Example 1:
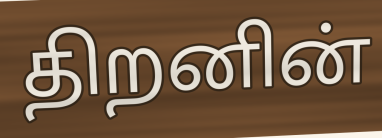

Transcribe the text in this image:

திறனின்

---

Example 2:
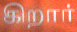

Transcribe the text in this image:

கிறார்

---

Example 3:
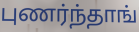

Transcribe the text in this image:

புணர்ந்தாங்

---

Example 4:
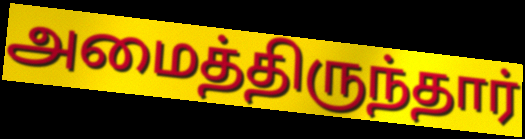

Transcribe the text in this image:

அமைத்திருந்தார்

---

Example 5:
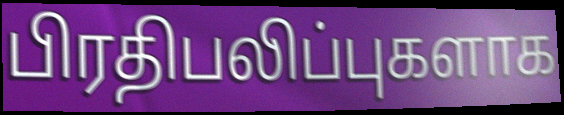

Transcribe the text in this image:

பிரதிபலிப்புகளாக